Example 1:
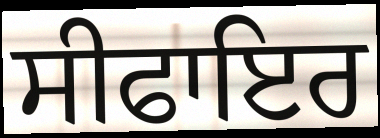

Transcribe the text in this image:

ਸੀਫਾਇਰ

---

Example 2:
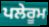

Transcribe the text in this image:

ਪਲੇਰੂਮ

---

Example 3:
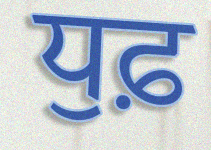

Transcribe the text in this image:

ਧੁਫ਼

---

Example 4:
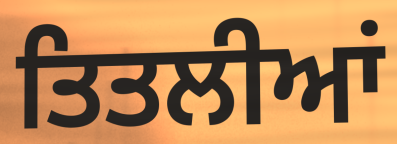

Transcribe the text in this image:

ਤਿਤਲੀਆਂ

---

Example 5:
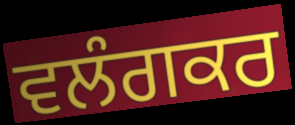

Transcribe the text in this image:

ਵਲੰਗਕਰ